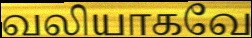
வலியாகவே